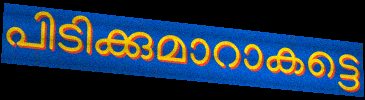
പിടിക്കുമാറാകട്ടെ